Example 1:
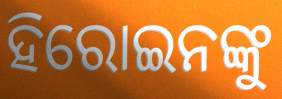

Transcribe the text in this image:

ହିରୋଇନଙ୍କୁ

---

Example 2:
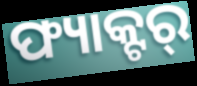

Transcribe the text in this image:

ଫ୍ୟାକ୍ଟର୍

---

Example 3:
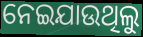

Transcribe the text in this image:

ନେଇଯାଉଥିଲୁ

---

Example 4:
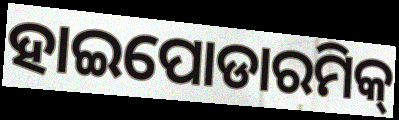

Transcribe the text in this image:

ହାଇପୋଡାରମିକ୍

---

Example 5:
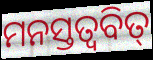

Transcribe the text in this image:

ମନସ୍ତତ୍ୱବିତ୍